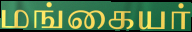
மங்கையர்